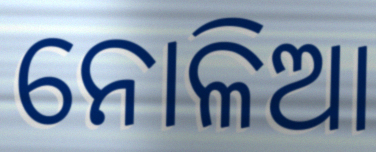
ନୋଳିଆ